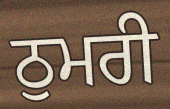
ਠੁਮਰੀ